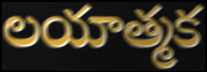
లయాత్మక